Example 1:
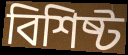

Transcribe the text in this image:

বিশিষ্ট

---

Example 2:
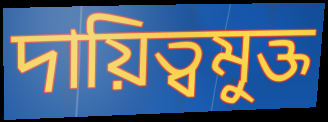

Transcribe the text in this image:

দায়িত্বমুক্ত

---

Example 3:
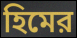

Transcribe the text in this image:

হিমের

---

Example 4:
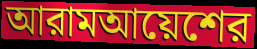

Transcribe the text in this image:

আরামআয়েশের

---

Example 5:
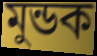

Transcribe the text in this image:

মুন্ডক